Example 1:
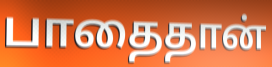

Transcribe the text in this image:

பாதைதான்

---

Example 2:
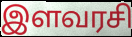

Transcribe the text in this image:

இளவரசி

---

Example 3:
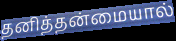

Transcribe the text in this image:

தனித்தன்மையால்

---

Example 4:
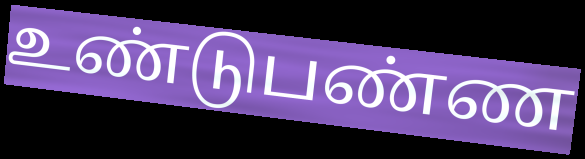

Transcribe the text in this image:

உண்டுபண்ண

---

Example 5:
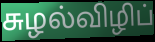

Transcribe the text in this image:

சுழல்விழிப்